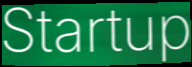
Startup